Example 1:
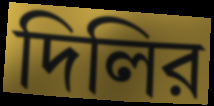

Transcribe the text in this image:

দিলির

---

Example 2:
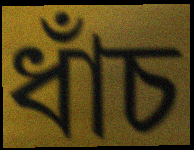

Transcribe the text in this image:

ধাঁচ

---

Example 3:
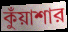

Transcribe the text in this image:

কুঁয়াশার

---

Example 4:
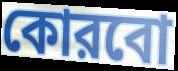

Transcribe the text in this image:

কোরবো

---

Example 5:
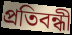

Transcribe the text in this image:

প্রতিবন্ধী